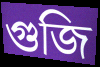
গুজি